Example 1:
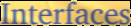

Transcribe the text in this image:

Interfaces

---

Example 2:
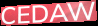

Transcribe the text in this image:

CEDAW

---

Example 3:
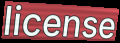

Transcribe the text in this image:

license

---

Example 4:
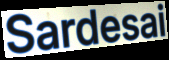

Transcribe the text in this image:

Sardesai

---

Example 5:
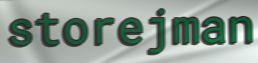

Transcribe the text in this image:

storejman